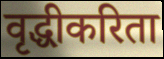
वृद्धीकरिता